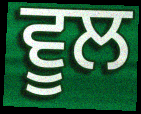
ਵੂਲ